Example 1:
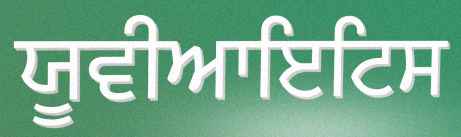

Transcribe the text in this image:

ਯੂਵੀਆਇਟਿਸ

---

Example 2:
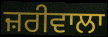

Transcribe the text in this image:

ਜ਼ਰੀਵਾਲਾ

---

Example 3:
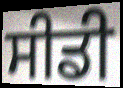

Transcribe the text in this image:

ਸੀਡੀ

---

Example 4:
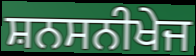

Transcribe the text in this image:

ਸ਼ਨਸਨੀਖੇਜ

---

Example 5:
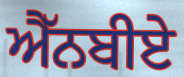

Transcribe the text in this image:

ਐੱਨਬੀਏ